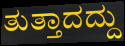
ತುತ್ತಾದದ್ದು